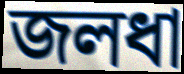
জলধা